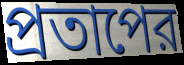
প্রতাপের